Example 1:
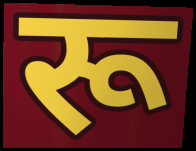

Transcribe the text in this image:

रू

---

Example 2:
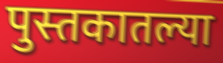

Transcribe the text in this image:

पुस्तकातल्या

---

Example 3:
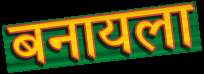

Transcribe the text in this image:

बनायला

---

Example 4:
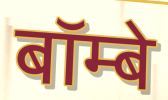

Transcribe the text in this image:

बॉम्बे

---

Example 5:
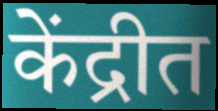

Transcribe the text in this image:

केंद्रीत